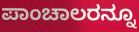
ಪಾಂಚಾಲರನ್ನೂ